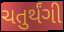
ચતુર્થંગી